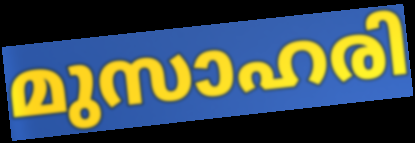
മുസാഹരി